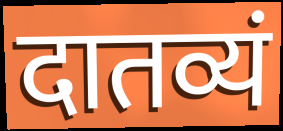
दातव्यं